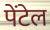
पेंटेल